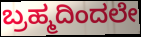
ಬ್ರಹ್ಮದಿಂದಲೇ